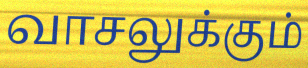
வாசலுக்கும்